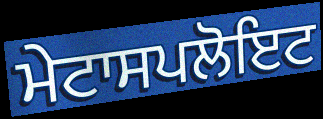
ਮੇਟਾਸਪਲੋਇਟ